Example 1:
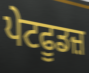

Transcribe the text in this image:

ਪੇਟਫੂਡਜ਼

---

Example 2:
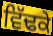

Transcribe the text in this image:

ਵਿੱਢਕੇ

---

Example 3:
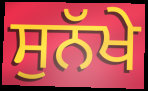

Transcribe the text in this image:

ਸੁਨੱਖੇ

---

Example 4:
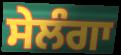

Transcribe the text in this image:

ਸੇਲੰਗਾ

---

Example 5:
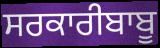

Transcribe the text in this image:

ਸਰਕਾਰੀਬਾਬੂ